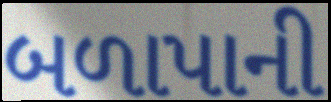
બળાપાની